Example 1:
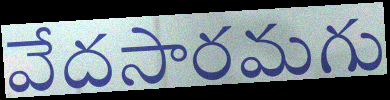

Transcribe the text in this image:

వేదసారమగు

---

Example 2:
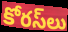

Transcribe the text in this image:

కోరస్‌లు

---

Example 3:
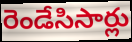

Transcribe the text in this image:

రెండేసిసార్లు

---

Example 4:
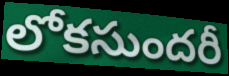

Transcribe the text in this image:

లోకసుందరీ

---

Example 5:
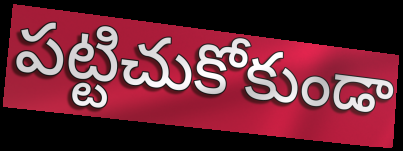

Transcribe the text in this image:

పట్టిచుకోకుండా